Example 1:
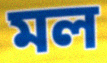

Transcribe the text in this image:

মল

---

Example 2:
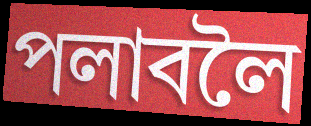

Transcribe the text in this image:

পলাবলৈ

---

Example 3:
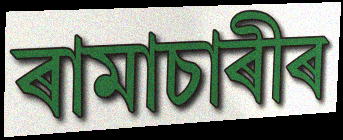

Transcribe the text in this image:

ৰামাচাৰীৰ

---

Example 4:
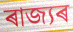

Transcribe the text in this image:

ৰাজ্যৰ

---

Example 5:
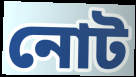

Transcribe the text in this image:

নোট